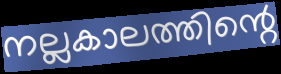
നല്ലകാലത്തിന്റെ